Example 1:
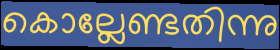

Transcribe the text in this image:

കൊല്ലേണ്ടതിന്നു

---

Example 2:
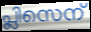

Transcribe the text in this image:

പ്ലിസെന്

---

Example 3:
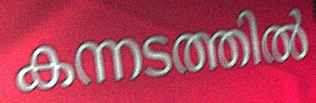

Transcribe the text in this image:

കന്നടത്തിൽ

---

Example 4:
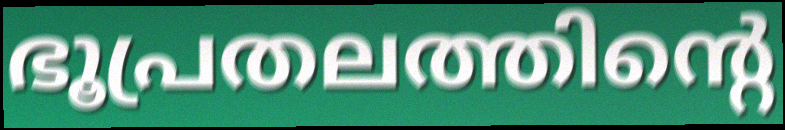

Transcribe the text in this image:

ഭൂപ്രതലത്തിന്റെ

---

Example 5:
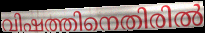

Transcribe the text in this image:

വിഷത്തിനെതിരിൽ